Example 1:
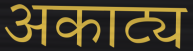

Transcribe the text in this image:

अकाट्य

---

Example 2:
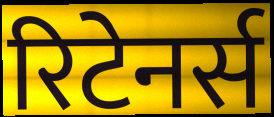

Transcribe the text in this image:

रिटेनर्स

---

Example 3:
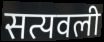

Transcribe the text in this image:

सत्यवली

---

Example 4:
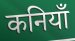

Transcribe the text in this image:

कनियाँ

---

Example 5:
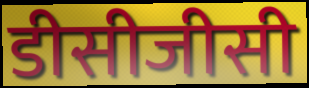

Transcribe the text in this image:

डीसीजीसी